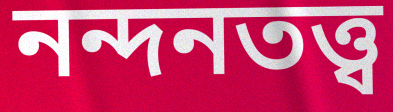
নন্দনতত্ত্ব